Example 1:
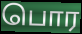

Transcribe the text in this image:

பொர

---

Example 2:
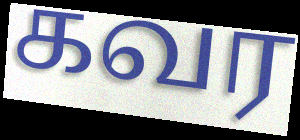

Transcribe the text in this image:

கவர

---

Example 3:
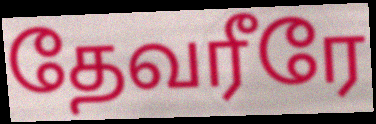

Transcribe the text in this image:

தேவரீரே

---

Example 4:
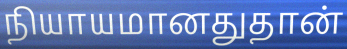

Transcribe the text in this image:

நியாயமானதுதான்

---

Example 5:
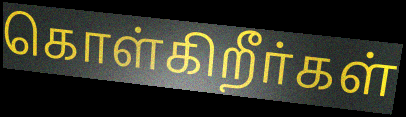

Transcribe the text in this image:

கொள்கிறீர்கள்